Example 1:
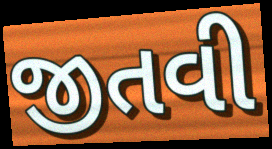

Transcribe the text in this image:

જીતવી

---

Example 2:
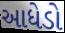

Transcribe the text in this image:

આધેડો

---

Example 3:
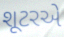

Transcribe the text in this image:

શૂટરએ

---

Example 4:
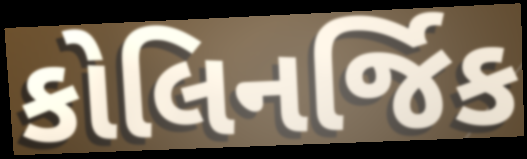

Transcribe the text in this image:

કોલિનર્જિક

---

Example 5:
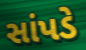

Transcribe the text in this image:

સાંપડે